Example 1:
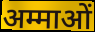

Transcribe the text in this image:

अम्माओं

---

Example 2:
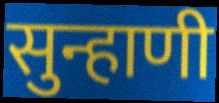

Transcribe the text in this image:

सुन्हाणी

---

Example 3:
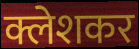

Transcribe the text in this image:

क्लेशकर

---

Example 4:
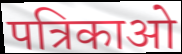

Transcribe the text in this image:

पत्रिकाओ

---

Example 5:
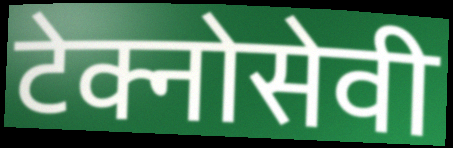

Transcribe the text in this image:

टेक्नोसेवी